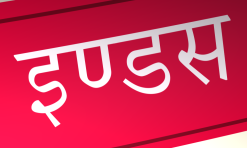
इण्डस